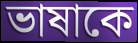
ভাষাকে